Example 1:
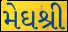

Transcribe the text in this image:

મેઘશ્રી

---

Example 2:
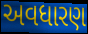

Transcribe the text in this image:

અવધારણ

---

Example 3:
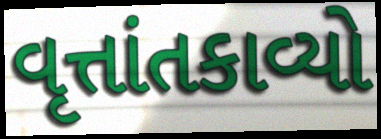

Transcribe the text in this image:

વૃત્તાંતકાવ્યો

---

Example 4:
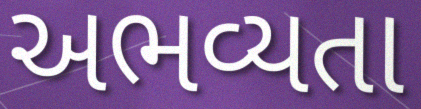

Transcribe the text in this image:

અભવ્યતા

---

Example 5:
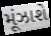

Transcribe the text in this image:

મૂંઝાશે